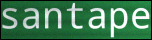
santape